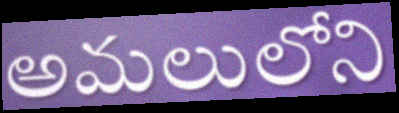
అమలులోని